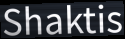
Shaktis